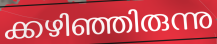
ക്കഴിഞ്ഞിരുന്നു